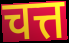
चत्त